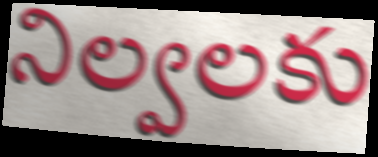
నిల్వలకు